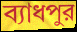
ব্যাধপুর